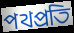
পথপ্রতি